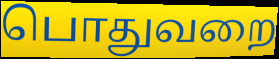
பொதுவறை